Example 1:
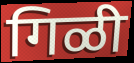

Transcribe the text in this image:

गिळी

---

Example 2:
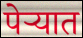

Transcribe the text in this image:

पेऱ्यात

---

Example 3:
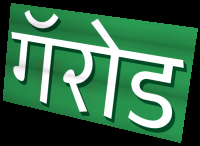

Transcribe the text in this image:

गॅरोड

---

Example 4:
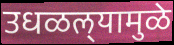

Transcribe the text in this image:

उधळल्यामुळे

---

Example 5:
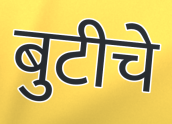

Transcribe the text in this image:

बुटीचे